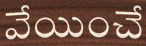
వేయించే